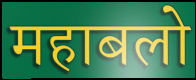
महाबलो